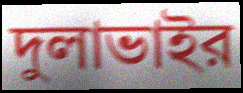
দুলাভাইর